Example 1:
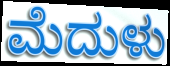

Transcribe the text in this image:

ಮೆದುಳು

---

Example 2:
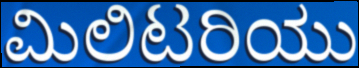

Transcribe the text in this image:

ಮಿಲಿಟರಿಯು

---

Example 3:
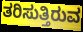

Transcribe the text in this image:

ತರಿಸುತ್ತಿರುವ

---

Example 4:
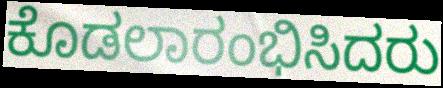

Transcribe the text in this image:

ಕೊಡಲಾರಂಭಿಸಿದರು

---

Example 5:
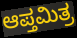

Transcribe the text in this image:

ಆಪ್ತಮಿತ್ರ